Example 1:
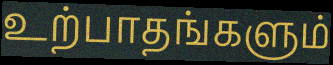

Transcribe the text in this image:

உற்பாதங்களும்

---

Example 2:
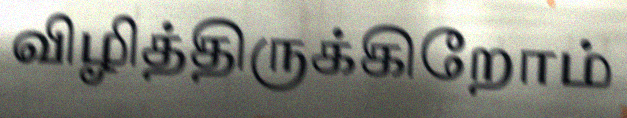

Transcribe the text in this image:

விழித்திருக்கிறோம்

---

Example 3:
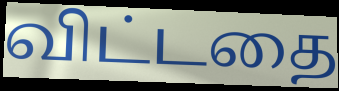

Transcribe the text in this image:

விட்டதை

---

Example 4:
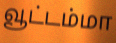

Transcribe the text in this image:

வூட்டம்மா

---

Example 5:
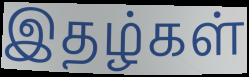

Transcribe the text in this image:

இதழ்கள்